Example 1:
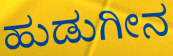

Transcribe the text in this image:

ಹುಡುಗೀನ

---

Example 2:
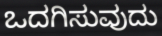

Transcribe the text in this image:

ಒದಗಿಸುವುದು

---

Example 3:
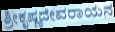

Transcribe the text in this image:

ಶ್ರೀಕೃಷ್ಣದೇವರಾಯನ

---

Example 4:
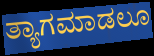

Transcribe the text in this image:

ತ್ಯಾಗಮಾಡಲೂ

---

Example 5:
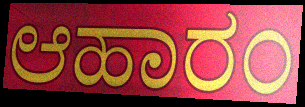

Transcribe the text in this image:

ಆಹಾರಂ